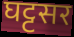
घट्टसर